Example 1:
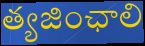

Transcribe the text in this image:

త్యజింఛాలి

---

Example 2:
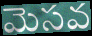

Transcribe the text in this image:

మెసవ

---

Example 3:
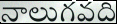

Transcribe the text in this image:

నాలుగవది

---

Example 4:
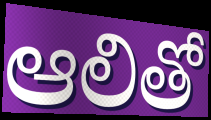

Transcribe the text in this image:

ఆలితో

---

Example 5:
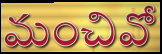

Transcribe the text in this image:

మంచివో